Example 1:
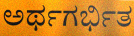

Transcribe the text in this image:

ಅರ್ಥಗರ್ಭಿತ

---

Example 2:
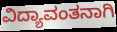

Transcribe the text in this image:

ವಿದ್ಯಾವಂತನಾಗಿ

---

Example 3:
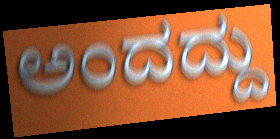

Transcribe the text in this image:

ಅಂದದ್ದು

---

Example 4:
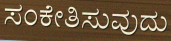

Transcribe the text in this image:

ಸಂಕೇತಿಸುವುದು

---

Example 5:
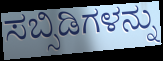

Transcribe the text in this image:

ಸಬ್ಸಿಡಿಗಳನ್ನು